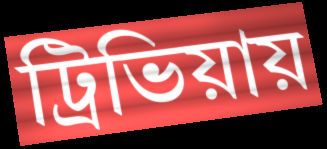
ট্রিভিয়ায়